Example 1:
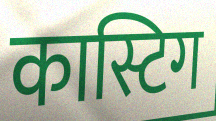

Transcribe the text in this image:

कास्टिग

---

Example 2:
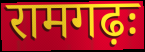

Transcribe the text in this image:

रामगढ़ः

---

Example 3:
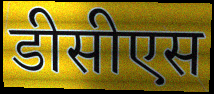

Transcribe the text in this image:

डीसीएस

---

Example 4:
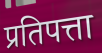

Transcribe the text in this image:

प्रतिपत्ता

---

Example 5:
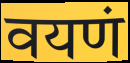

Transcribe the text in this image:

वयणं